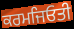
ਕਰਮਜਿਓਤੀ